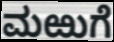
ಮಱುಗೆ